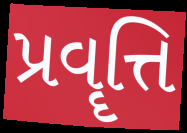
પ્રવૄત્તિ